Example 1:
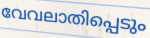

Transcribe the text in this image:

വേവലാതിപ്പെടും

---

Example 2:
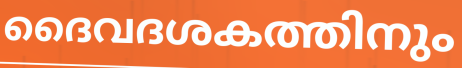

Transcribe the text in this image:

ദൈവദശകത്തിനും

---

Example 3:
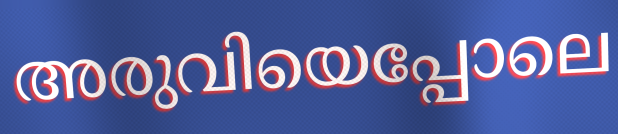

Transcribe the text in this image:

അരുവിയെപ്പോലെ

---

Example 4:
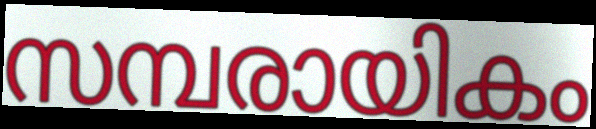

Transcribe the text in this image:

സമ്പരായികം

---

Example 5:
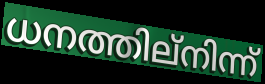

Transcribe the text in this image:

ധനത്തില്നിന്ന്